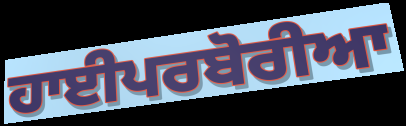
ਹਾਈਪਰਬੋਰੀਆ